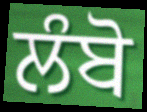
ਲੰਬੋ